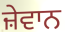
ਜ਼ੇਵਾਨ